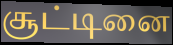
சூட்டினை